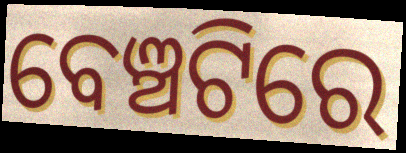
ବେଞ୍ଚଟିରେ